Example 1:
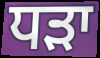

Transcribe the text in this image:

ਧੜਾ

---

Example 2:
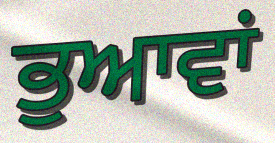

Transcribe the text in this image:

ਭੁਆਵਾਂ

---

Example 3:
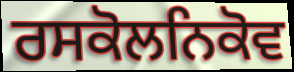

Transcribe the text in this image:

ਰਸਕੋਲਨਿਕੋਵ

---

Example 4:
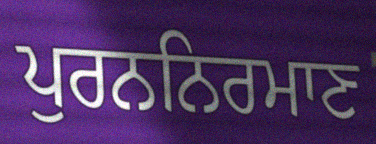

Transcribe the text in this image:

ਪੁਰਨਨਿਰਮਾਣ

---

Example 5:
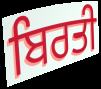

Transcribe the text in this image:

ਬਿਰਤੀ